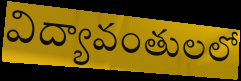
విద్యావంతులలో